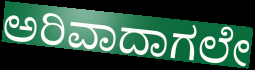
ಅರಿವಾದಾಗಲೇ